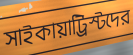
সাইকায়াট্রিস্টদের